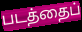
படத்தைப்